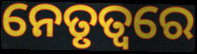
ନେତୃତ୍ଵରେ